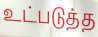
உட்படுத்த